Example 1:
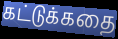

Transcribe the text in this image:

கட்டுக்கதை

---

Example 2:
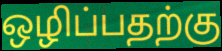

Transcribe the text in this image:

ஒழிப்பதற்கு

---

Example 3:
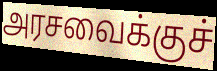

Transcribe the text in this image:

அரசவைக்குச்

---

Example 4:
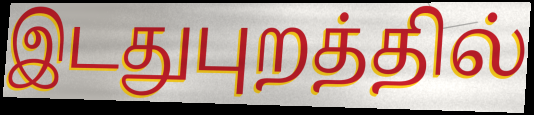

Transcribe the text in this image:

இடதுபுறத்தில்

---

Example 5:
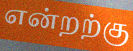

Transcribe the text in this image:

என்றற்கு